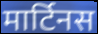
मार्टिनस